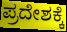
ಪ್ರದೇಶಕ್ಕೆ